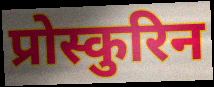
प्रोस्कुरिन